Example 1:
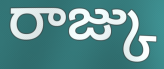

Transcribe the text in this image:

రాజ్కు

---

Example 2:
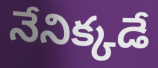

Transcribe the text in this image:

నేనిక్కడే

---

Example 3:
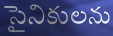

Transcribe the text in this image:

సైనికులను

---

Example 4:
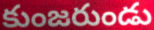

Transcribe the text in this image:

కుంజరుండు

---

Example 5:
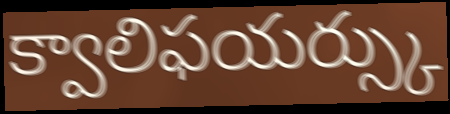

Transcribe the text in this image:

క్వాలిఫయర్స్కు